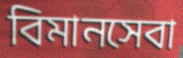
বিমানসেবা